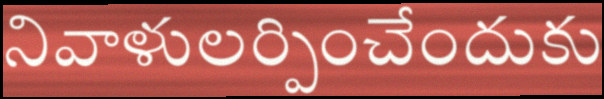
నివాళులర్పించేందుకు